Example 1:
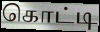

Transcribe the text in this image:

கொட்டி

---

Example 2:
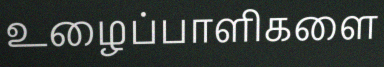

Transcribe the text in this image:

உழைப்பாளிகளை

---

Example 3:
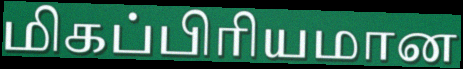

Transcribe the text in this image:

மிகப்பிரியமான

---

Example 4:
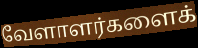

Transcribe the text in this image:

வேளாளர்களைக்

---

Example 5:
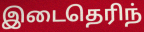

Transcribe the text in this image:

இடைதெரிந்